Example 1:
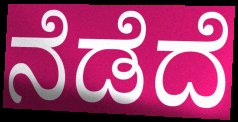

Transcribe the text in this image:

ನೆಡೆದೆ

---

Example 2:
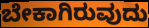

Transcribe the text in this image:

ಬೇಕಾಗಿರುವುದು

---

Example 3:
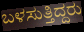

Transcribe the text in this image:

ಬಳಸುತ್ತಿದ್ದರು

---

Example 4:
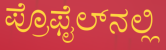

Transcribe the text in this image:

ಪ್ರೊಫೈಲ್‌ನಲ್ಲಿ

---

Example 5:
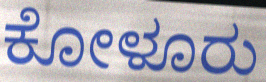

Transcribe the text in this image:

ಕೋಳೂರು